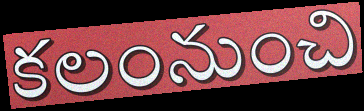
కలంనుంచి